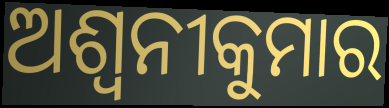
ଅଶ୍ୱନୀକୁମାର